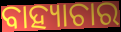
ବାହ୍ୟାଚାର